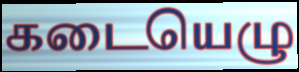
கடையெழு